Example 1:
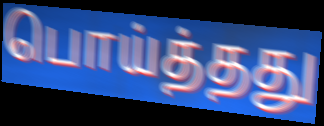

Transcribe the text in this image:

பொய்த்தது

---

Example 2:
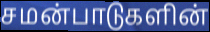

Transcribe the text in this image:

சமன்பாடுகளின்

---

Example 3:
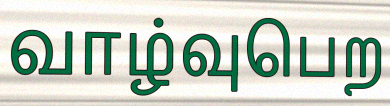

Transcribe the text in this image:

வாழ்வுபெற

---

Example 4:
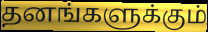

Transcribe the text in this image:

தனங்களுக்கும்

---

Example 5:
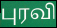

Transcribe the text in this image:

புரவி